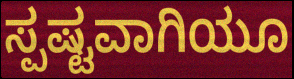
ಸ್ಪಷ್ಟವಾಗಿಯೂ